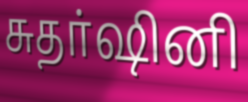
சுதர்ஷினி